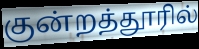
குன்றத்தூரில்